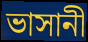
ভাসানী